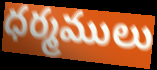
ధర్మములు